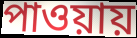
পাওয়ায়